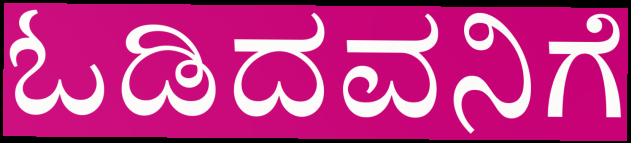
ಓಡಿದವನಿಗೆ